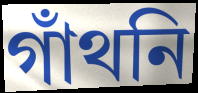
গাঁথনি